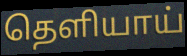
தெளியாய்